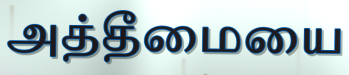
அத்தீமையை